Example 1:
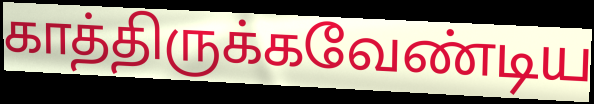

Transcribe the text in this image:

காத்திருக்கவேண்டிய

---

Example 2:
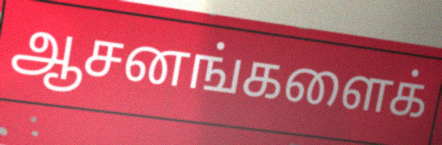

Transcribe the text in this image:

ஆசனங்களைக்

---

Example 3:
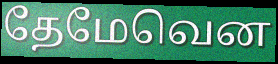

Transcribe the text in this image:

தேமேவென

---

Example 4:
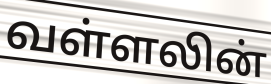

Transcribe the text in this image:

வள்ளலின்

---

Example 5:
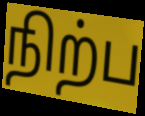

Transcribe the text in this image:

நிற்ப